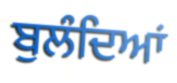
ਬੁਲੰਦਿਆਂ